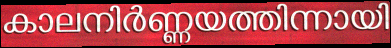
കാലനിർണ്ണയത്തിന്നായി